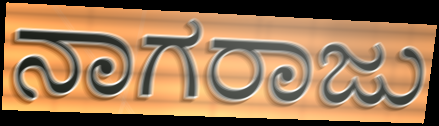
ನಾಗರಾಜು